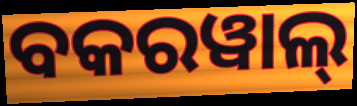
ବକରୱାଲ୍